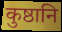
कुष्ठानि